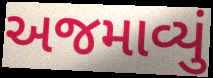
અજમાવ્યું